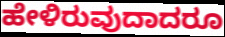
ಹೇಳಿರುವುದಾದರೂ